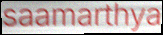
saamarthya